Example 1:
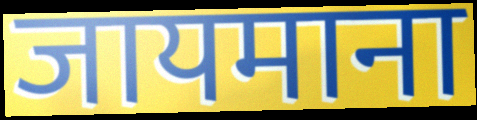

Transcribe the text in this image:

जायमाना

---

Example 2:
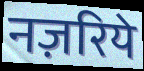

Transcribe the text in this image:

नज़रिये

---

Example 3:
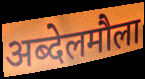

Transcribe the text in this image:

अब्देलमौला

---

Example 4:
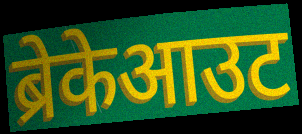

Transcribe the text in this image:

ब्रेकेआउट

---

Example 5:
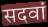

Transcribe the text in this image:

सदवां